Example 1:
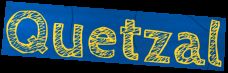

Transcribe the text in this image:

Quetzal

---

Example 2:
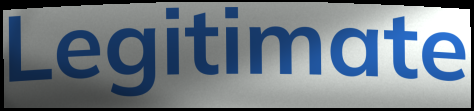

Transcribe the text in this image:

Legitimate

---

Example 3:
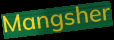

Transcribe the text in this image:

Mangsher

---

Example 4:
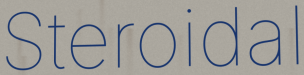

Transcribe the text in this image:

Steroidal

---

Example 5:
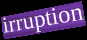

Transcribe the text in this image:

irruption